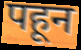
पहून